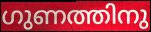
ഗുണത്തിനു